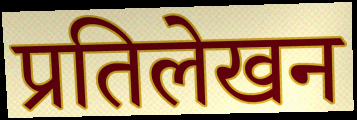
प्रतिलेखन